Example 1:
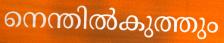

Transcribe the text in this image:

നെന്തിൽകുത്തും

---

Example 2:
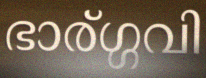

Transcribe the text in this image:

ഭാര്ഗ്ഗവി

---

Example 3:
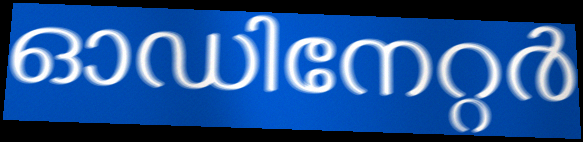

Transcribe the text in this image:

ഓഡിനേറ്റർ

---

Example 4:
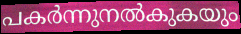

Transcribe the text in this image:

പകർന്നുനൽകുകയും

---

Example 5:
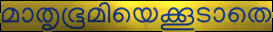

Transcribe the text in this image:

മാതൃഭൂമിയെക്കൂടാതെ